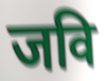
जवि